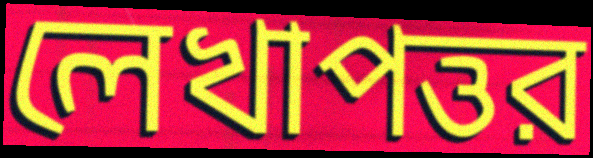
লেখাপত্তর